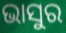
ଭାସୁର